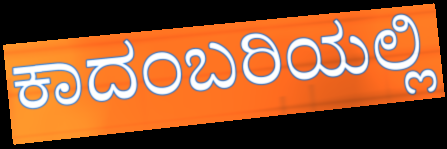
ಕಾದಂಬರಿಯಲ್ಲಿ